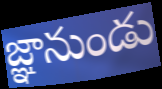
జ్ఞానుండు